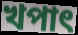
খপাৎ